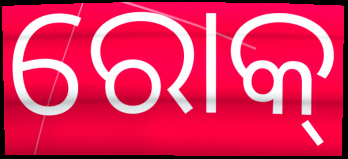
ରୋକ୍